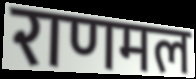
राणमल